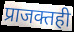
प्राजक्तही